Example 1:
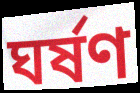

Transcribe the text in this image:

ঘৰ্ষণ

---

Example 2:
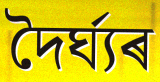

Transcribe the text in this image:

দৈৰ্ঘ্যৰ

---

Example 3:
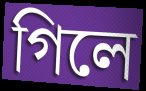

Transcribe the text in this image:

গিলে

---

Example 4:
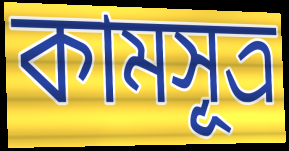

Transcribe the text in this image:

কামসূত্ৰ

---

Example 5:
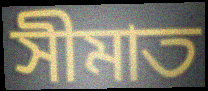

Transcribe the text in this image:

সীমাত